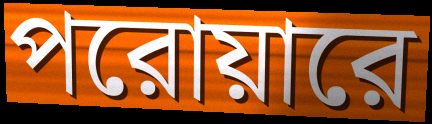
পরোয়ারে